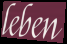
leben